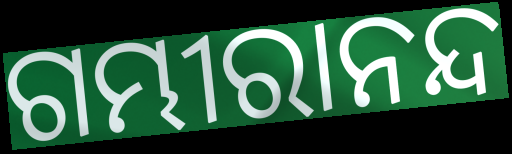
ଗମ୍ଭୀରାନନ୍ଦ